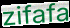
zifafa